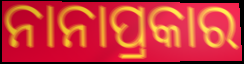
ନାନାପ୍ରକାର